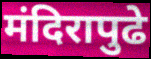
मंदिरापुढे